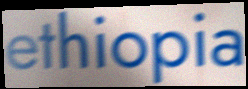
ethiopia